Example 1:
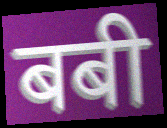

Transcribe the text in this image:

बबी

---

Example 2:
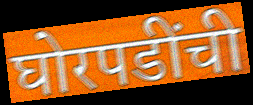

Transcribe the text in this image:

घोरपडींची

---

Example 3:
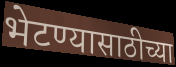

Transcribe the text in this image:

भेटण्यासाठीच्या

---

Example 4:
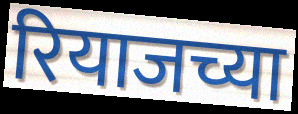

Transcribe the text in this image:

रियाजच्या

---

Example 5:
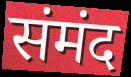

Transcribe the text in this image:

संमंद